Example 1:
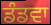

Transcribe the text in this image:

ਡੰਡਵਾ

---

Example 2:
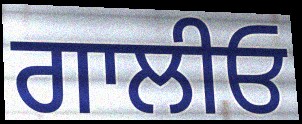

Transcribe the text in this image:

ਗਾਲੀਓ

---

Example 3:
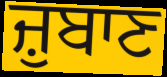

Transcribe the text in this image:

ਜ਼ੁਬਾਣ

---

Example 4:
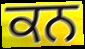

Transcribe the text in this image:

ਕਨ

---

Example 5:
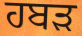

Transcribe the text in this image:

ਹਬੜ